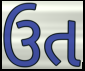
ઉત